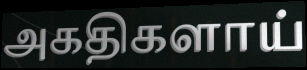
அகதிகளாய்